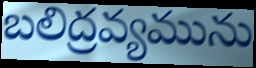
బలిద్రవ్యమును